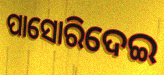
ପାସୋରିଦେଇ